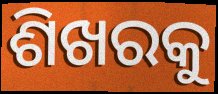
ଶିଖରକୁ